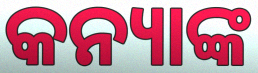
କନ୍ୟାଙ୍କ